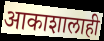
आकाशालाही